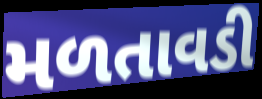
મળતાવડી